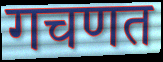
गचणत